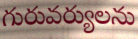
గురువర్యులను